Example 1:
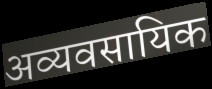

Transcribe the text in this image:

अव्यवसायिक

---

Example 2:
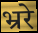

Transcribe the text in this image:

भ्ररे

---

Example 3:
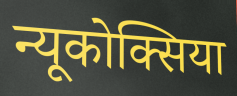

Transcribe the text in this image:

न्यूकोक्सिया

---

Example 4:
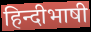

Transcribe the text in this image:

हिन्दीभाषी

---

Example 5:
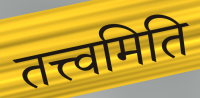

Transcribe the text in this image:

तत्त्वमिति